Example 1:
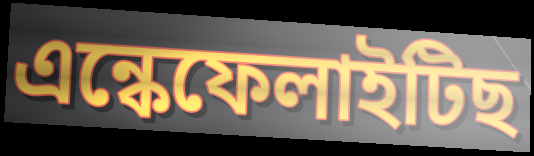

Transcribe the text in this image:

এন্কেফেলাইটিছ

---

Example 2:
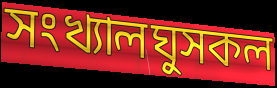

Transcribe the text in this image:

সংখ্যালঘুসকল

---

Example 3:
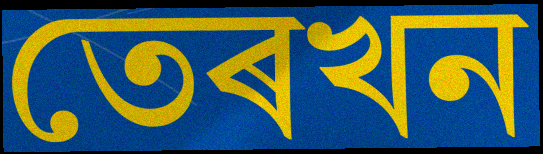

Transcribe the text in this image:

তেৰখন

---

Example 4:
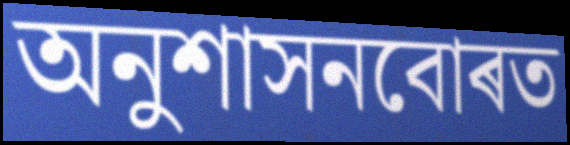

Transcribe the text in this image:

অনুশাসনবোৰত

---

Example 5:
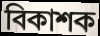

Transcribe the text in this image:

বিকাশক